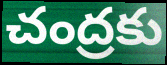
చంద్రకు